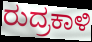
ರುದ್ರಕಾಳಿ